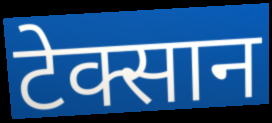
टेक्सान